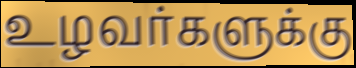
உழவர்களுக்கு